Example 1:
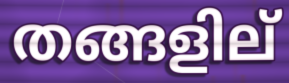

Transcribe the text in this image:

തങ്ങളില്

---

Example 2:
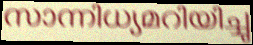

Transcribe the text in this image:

സാന്നിധ്യമറിയിച്ചു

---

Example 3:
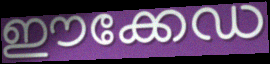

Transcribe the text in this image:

ഈക്കേഡ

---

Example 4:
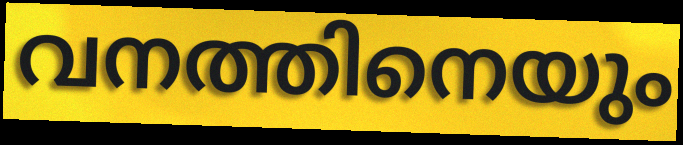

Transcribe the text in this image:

വനത്തിനെയും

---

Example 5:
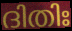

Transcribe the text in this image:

ദിതിഃ